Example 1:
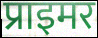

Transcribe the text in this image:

प्राइमर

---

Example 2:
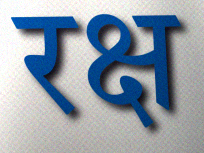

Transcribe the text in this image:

रक्ष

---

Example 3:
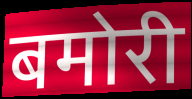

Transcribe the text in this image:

बमोरी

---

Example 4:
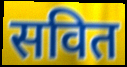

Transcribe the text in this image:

सवित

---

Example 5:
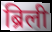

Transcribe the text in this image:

ब्रिली